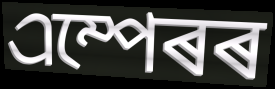
এম্পেৰৰ